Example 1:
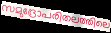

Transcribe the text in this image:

സമുദ്രോപരിതലത്തിലെ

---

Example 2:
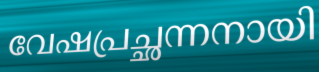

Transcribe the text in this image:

വേഷപ്രച്ഛന്നനായി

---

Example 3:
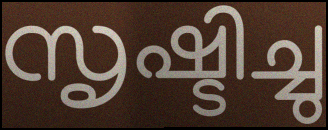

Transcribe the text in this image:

സൃഷ്ടിച്ചു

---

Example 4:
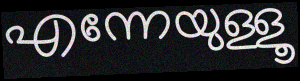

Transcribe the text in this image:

എന്നേയുള്ളൂ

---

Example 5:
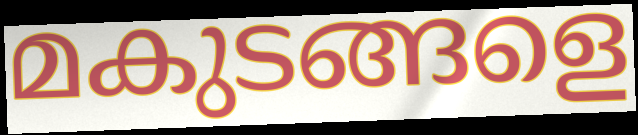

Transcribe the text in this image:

മകുടങ്ങളെ